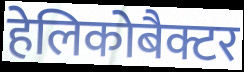
हेलिकोबैक्टर